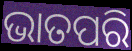
ଭାତପରି